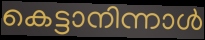
കെട്ടാനിന്നാൾ